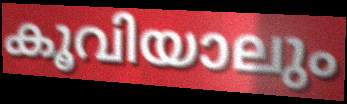
കൂവിയാലും